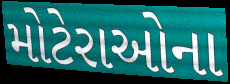
મોટેરાઓના